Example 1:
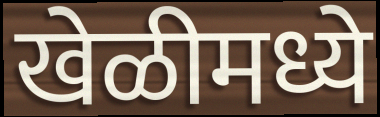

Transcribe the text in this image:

खेळीमध्ये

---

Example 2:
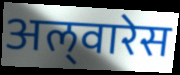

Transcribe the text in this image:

अल्वारेस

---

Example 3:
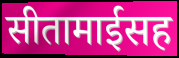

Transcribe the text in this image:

सीतामाईसह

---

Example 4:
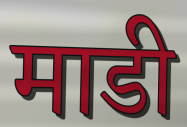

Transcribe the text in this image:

माडी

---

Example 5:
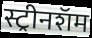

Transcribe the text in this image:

स्ट्रीनशॅम